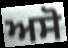
ਅਸੋ